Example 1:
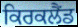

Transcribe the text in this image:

ਕਿਰਕਲੈਂਡ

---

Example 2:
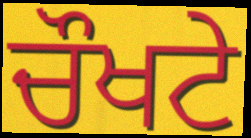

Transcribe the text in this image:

ਚੌਖਟੇ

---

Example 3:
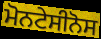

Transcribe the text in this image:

ਮੋਨਟੇਸੀਨੋਸ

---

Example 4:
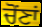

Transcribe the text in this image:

ਚੋਂਣਾਂ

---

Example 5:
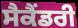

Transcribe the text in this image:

ਸੈਕੈਂਡਰੀ